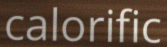
calorific